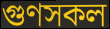
গুণসকল